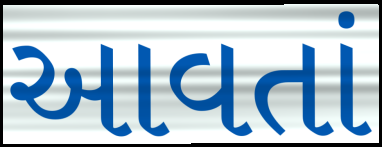
આવતાં